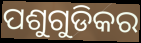
ପଶୁଗୁଡିକର